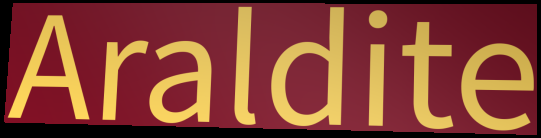
Araldite